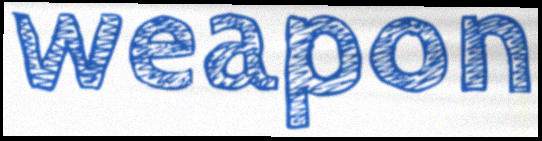
weapon